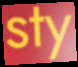
sty